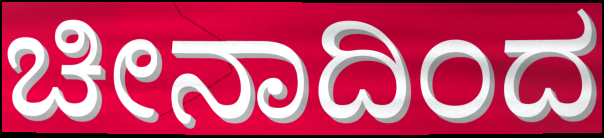
ಚೀನಾದಿಂದ